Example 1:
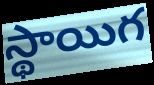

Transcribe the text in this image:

స్థాయిగ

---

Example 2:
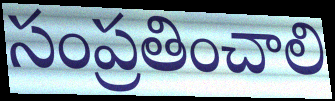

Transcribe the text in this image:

సంప్రతించాలి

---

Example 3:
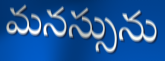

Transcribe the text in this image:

మనస్సును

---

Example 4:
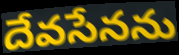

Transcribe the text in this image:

దేవసేనను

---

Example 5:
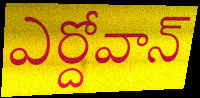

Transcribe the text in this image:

ఎర్దోవాన్